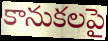
కానుకలపై